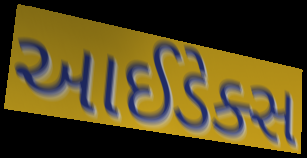
આઈડેક્સ